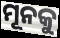
ମୂନକୁ